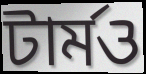
টার্মও